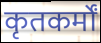
कृतकर्मों